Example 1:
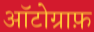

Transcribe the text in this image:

ऑटोग्राफ़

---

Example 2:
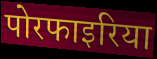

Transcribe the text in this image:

पोरफाइरिया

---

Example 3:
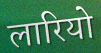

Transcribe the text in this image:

लारियो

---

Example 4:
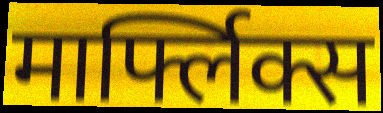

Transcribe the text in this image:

मार्फ्लिक्स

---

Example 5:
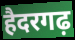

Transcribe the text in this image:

हैदरगढ़